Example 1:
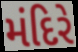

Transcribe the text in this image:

મંદિરે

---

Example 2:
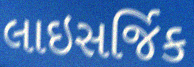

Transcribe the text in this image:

લાઇસર્જિક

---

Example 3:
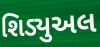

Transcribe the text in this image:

શિડ્યુઅલ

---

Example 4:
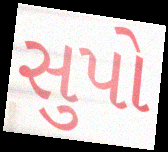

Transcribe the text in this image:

સુપો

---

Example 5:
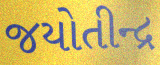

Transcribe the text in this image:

જયોતીન્દ્ર